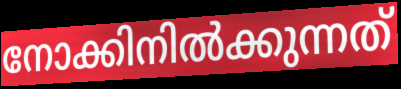
നോക്കിനിൽക്കുന്നത്